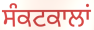
ਸੰਕਟਕਾਲਾਂ